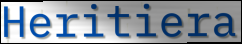
Heritiera